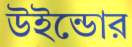
উইন্ডোর